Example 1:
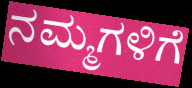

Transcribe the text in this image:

ನಮ್ಮಗಳಿಗೆ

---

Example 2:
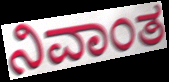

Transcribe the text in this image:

ನಿವಾಂತ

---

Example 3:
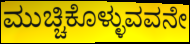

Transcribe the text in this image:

ಮುಚ್ಚಿಕೊಳ್ಳುವವನೇ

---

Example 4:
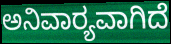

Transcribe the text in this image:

ಅನಿವಾರ‍್ಯವಾಗಿದೆ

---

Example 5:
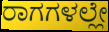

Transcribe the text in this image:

ರಾಗಗಳಲ್ಲೇ